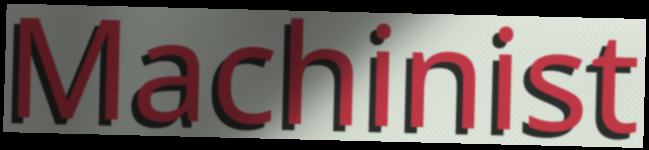
Machinist